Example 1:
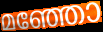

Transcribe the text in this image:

മഞ്ഞോ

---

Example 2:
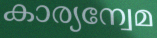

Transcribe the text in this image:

കാര്യന്വേമ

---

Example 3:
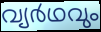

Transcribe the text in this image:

വ്യർഥവും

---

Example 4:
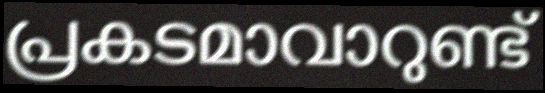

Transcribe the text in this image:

പ്രകടമാവാറുണ്ട്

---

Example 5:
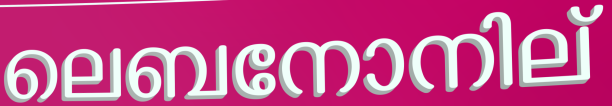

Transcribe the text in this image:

ലെബനോനില്